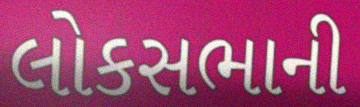
લોકસભાની